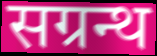
सग्रन्थ